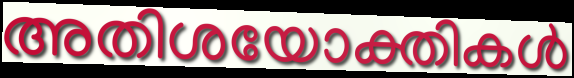
അതിശയോക്തികൾ